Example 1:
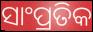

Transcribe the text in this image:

ସାଂପ୍ରତିକ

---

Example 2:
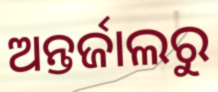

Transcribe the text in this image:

ଅନ୍ତର୍ଜାଲରୁ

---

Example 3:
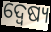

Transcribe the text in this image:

ଦ୍ୱେଷ୍ୟ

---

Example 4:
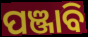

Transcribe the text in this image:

ପଞ୍ଜାବି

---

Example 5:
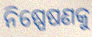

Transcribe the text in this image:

ନିଷ୍ପେଷଣକୁ